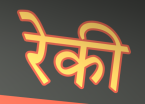
रेकी